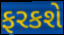
ફરકશે